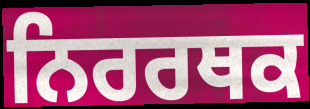
ਨਿਰਰਥਕ